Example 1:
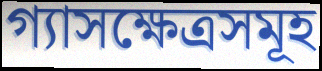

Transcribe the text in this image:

গ্যাসক্ষেত্রসমূহ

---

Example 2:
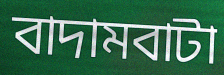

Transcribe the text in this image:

বাদামবাটা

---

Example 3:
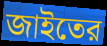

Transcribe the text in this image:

জাইতের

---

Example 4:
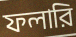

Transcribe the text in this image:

ফলারি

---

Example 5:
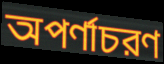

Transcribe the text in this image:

অপর্ণাচরণ